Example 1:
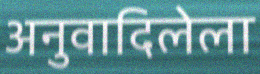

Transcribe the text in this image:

अनुवादिलेला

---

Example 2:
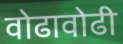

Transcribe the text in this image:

वोढावोढी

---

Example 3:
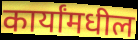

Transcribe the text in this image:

कार्यांमधील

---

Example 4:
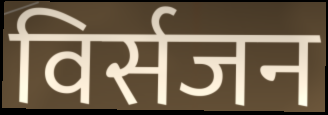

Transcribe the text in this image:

विर्सजन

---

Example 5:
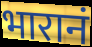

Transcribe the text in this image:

भारानं